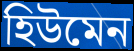
হিউমেন